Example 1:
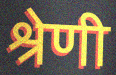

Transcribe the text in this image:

श्रेणी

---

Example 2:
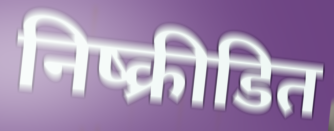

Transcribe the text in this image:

निष्क्रीडित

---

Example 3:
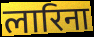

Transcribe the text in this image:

लारिना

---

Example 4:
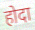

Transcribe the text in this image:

होदा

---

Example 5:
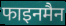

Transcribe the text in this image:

फाइनमैन